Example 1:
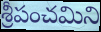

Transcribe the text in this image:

శ్రీపంచమిని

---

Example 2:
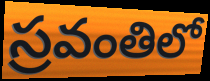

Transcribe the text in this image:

స్రవంతిలో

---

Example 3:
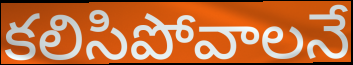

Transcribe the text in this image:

కలిసిపోవాలనే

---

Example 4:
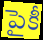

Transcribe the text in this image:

పైకీ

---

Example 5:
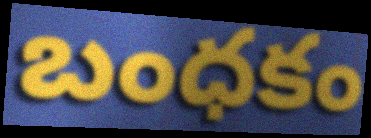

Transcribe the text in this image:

బంధకం